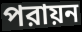
পরায়ন